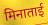
मिनाताई